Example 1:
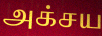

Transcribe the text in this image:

அக்சய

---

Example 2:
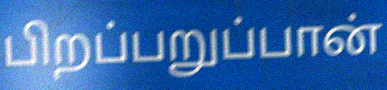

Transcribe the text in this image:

பிறப்பறுப்பான்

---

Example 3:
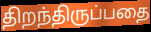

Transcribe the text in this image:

திறந்திருப்பதை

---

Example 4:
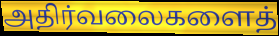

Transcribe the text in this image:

அதிர்வலைகளைத்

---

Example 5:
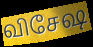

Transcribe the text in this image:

விசேஷ